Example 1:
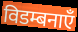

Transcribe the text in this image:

विडम्बनाएँ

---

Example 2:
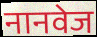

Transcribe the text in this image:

नानवेज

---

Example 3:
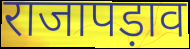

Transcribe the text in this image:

राजापड़ाव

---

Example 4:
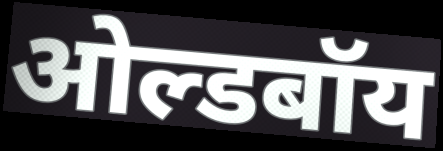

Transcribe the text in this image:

ओल्डबॉय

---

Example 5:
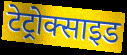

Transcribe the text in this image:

टेट्रोक्साइड